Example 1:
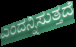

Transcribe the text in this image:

ಎಂದನ್ನಿಸುತ್ತದೆ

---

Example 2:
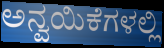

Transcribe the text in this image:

ಅನ್ವಯಿಕೆಗಳಲ್ಲಿ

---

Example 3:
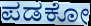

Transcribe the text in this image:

ಪಡಕೋ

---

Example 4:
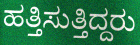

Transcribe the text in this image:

ಹತ್ತಿಸುತ್ತಿದ್ದರು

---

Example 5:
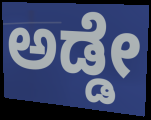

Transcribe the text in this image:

ಅಡ್ಡೇ